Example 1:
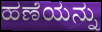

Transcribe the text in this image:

ಹಣೆಯನ್ನು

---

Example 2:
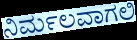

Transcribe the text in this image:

ನಿರ್ಮಲವಾಗಲಿ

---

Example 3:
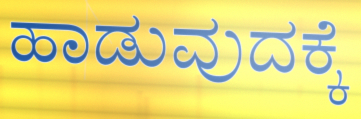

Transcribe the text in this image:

ಹಾಡುವುದಕ್ಕೆ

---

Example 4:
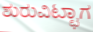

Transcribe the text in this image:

ಶುರುವಿಟ್ಟಾಗ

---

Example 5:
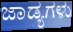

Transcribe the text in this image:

ಜಾಡ್ಯಗಳು